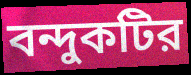
বন্দুকটির